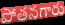
పోతనగారు